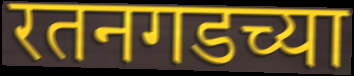
रतनगडच्या